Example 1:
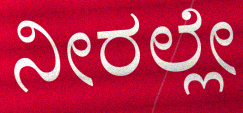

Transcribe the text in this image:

ನೀರಲ್ಲೇ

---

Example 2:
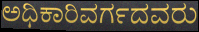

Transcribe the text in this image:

ಅಧಿಕಾರಿವರ್ಗದವರು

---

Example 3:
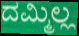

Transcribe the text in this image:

ದಮ್ಮಿಲ್ಲ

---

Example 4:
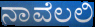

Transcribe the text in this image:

ನಾವೆಲಲಿ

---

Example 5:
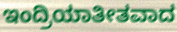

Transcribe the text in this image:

ಇಂದ್ರಿಯಾತೀತವಾದ